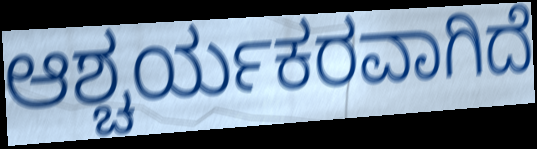
ಆಶ್ಚರ್ಯಕರವಾಗಿದೆ